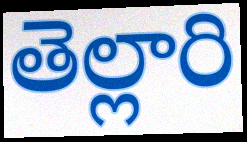
తెల్లారి